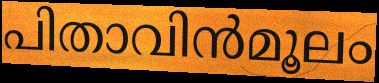
പിതാവിൻമൂലം